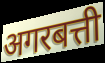
अगरबत्ती